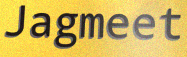
Jagmeet